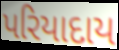
પરિયાદાય